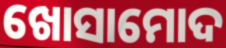
ଖୋସାମୋଦ